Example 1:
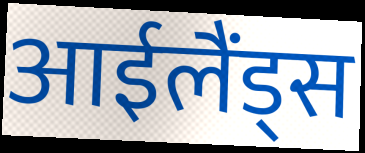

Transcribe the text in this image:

आईलैंड्स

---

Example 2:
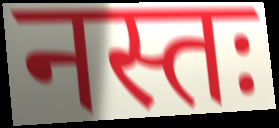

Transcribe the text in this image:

नस्तः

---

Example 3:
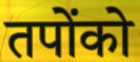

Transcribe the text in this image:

तपोंको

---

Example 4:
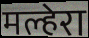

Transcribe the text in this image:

मल्हेरा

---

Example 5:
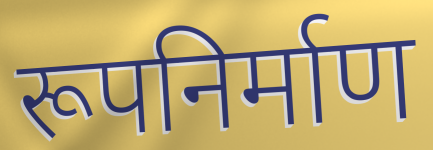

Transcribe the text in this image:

रूपनिर्माण